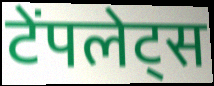
टेंपलेट्स